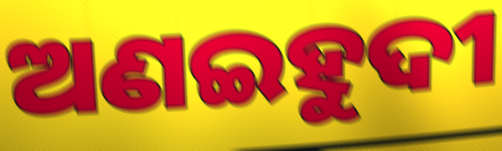
ଅଣଇହୁଦୀ